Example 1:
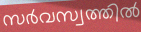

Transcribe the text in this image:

സർവസ്വത്തിൽ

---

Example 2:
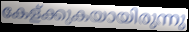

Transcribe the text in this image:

കേള്ക്കുകയായിരുന്നു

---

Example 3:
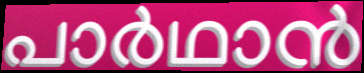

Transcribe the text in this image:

പാർഥാൻ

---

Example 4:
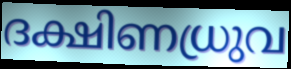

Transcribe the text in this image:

ദക്ഷിണധ്രുവ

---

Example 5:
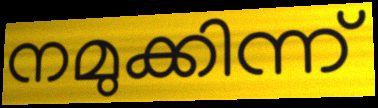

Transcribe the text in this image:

നമുക്കിന്ന്